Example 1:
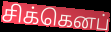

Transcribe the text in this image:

சிக்கெனப்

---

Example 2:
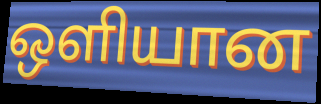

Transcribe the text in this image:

ஒளியான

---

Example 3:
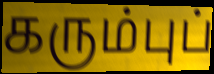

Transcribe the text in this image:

கரும்புப்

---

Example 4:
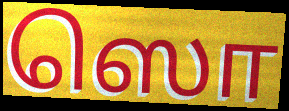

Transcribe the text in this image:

ஸொ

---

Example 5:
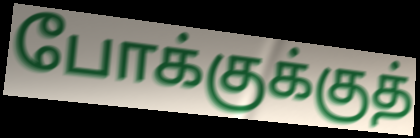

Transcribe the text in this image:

போக்குக்குத்